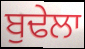
ਬੁਢੇਲਾ